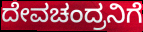
ದೇವಚಂದ್ರನಿಗೆ